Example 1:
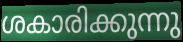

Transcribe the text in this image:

ശകാരിക്കുന്നു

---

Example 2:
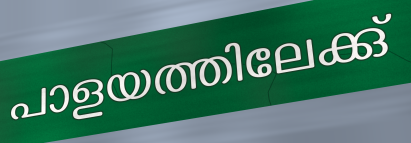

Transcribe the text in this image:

പാളയത്തിലേക്കു്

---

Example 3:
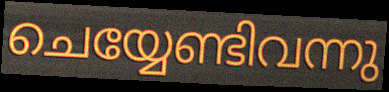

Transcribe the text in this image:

ചെയ്യേണ്ടിവന്നു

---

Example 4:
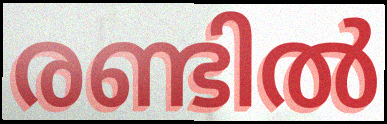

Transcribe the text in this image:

രണ്ടിൽ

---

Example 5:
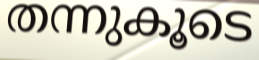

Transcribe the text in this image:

തന്നുകൂടെ